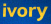
ivory